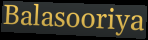
Balasooriya